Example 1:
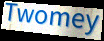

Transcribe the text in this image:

Twomey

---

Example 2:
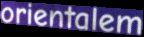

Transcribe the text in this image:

orientalem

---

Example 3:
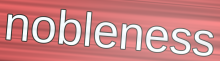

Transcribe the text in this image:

nobleness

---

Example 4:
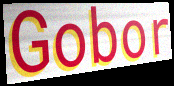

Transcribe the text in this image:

Gobor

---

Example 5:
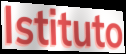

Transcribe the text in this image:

Istituto